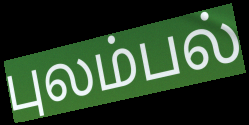
புலம்பல்